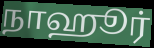
நாஹூர்